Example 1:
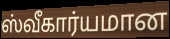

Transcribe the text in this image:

ஸ்வீகார்யமான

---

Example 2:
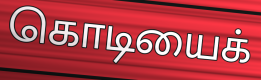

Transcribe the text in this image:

கொடியைக்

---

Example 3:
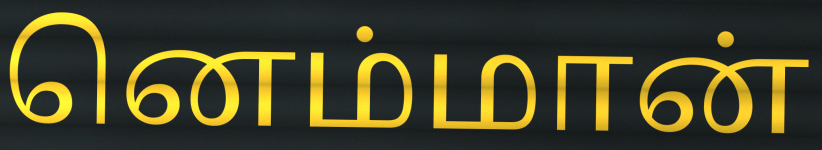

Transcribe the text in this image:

னெம்மான்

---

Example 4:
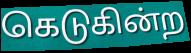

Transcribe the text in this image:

கெடுகின்ற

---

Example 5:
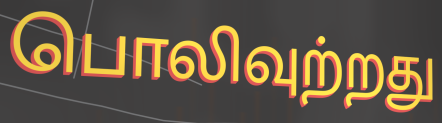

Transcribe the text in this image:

பொலிவுற்றது